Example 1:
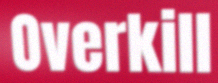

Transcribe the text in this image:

Overkill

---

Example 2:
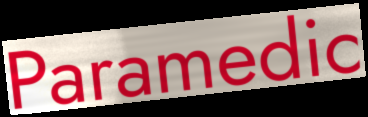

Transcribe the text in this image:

Paramedic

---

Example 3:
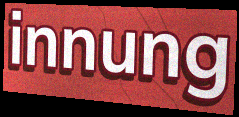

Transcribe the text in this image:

innung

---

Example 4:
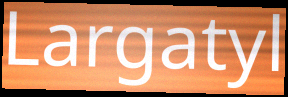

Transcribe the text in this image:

Largatyl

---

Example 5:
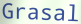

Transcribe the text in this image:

Grasal